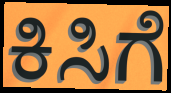
ಕಿಸಿಗೆ